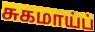
சுகமாய்ப்